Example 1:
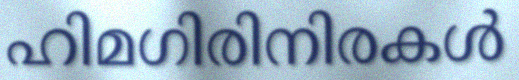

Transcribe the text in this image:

ഹിമഗിരിനിരകൾ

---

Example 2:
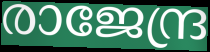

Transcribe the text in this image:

രാജേന്ദ്ര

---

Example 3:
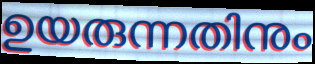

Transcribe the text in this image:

ഉയരുന്നതിനും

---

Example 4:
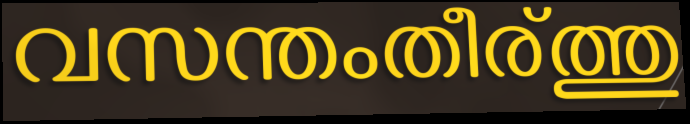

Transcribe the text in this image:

വസന്തംതീര്ത്തു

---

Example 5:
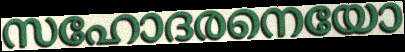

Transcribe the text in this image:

സഹോദരനെയോ